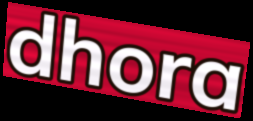
dhora